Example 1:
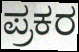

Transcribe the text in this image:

ಪ್ರಕರ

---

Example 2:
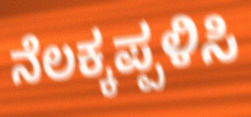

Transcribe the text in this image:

ನೆಲಕ್ಕಪ್ಪಳಿಸಿ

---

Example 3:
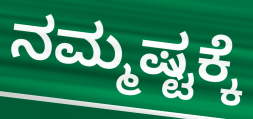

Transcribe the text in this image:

ನಮ್ಮಷ್ಟಕ್ಕೆ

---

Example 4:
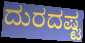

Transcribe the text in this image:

ದುರದಷ್ಟ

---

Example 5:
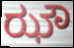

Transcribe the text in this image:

ಝೌ